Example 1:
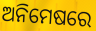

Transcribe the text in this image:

ଅନିମେଷରେ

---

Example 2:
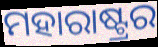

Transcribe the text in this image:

ମହାରାଷ୍ଟ୍ରର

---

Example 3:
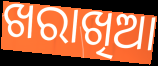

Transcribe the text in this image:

ଖରାଖିଆ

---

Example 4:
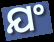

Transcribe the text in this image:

ଯଂ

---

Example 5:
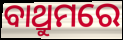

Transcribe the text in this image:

ବାଥ୍ରୁମରେ